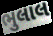
ભુલાલ